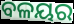
ବଳୟର